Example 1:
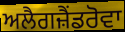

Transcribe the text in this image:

ਅਲੈਗਜ਼ੈਂਡਰੋਵਾ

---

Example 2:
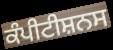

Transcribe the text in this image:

ਕੰਪੀਟੀਸ਼ਨਸ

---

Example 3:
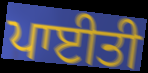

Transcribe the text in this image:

ਪਾਈਤੀ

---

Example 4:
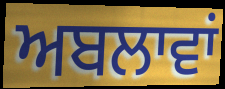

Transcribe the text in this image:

ਅਬਲਾਵਾਂ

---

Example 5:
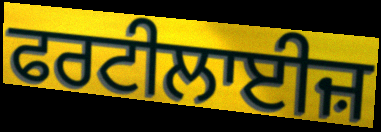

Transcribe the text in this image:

ਫਰਟੀਲਾਈਜ਼